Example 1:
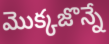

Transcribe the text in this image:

మొక్కజొన్నే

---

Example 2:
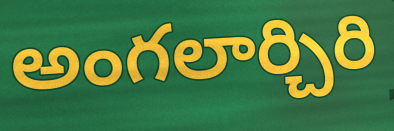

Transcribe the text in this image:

అంగలార్చిరి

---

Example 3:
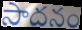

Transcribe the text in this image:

సాదనం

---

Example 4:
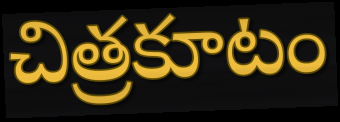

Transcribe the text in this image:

చిత్రకూటం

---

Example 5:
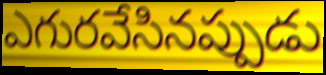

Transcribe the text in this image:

ఎగురవేసినప్పుడు